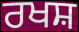
ਰਖਸ਼